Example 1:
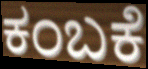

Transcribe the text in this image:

ಕಂಬಕೆ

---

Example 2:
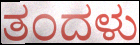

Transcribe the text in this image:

ತಂದಳು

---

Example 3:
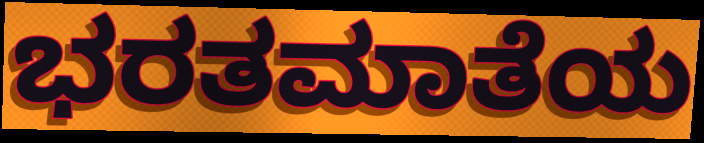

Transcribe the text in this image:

ಭರತಮಾತೆಯ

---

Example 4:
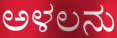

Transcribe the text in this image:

ಅಳಲನು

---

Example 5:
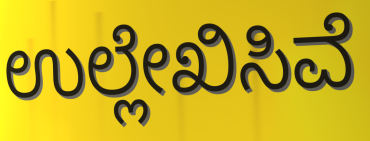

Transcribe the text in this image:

ಉಲ್ಲೇಖಿಸಿವೆ